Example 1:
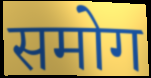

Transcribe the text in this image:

समोग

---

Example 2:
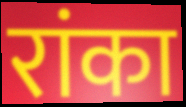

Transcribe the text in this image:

रांका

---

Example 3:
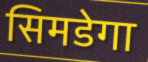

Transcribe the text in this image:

सिमडेगा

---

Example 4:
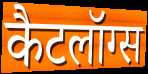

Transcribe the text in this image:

कैटलॉग्स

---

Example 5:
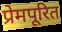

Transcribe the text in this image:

प्रेमपूरित